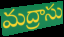
మద్రాసు